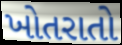
ખોતરાતો